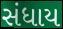
સંધાય